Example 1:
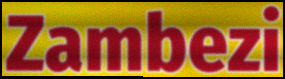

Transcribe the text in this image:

Zambezi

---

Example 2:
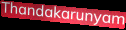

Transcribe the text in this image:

Thandakarunyam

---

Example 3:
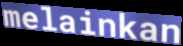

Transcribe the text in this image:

melainkan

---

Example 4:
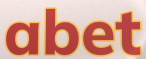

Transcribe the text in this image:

abet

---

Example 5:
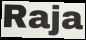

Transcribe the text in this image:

Raja